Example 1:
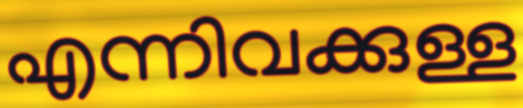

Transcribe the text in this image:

എന്നിവക്കുള്ള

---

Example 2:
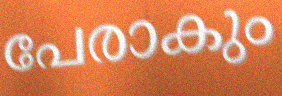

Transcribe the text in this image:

പേരാകും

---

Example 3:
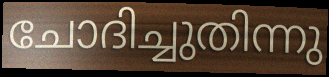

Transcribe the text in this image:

ചോദിച്ചുതിന്നു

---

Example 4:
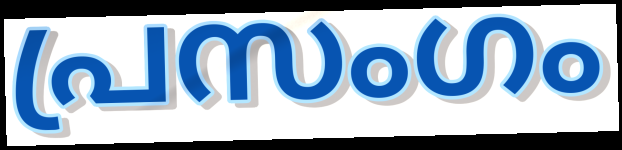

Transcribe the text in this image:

പ്രസംഗം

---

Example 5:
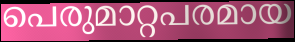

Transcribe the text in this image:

പെരുമാറ്റപരമായ